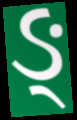
ઙ્